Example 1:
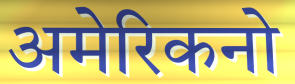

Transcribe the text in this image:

अमेरिकनो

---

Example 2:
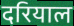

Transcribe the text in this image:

दरियाल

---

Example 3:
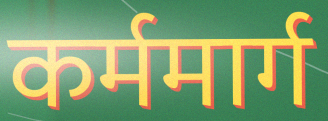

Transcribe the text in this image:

कर्ममार्ग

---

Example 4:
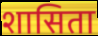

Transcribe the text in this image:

शासिता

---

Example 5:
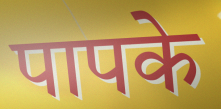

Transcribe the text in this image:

पापके